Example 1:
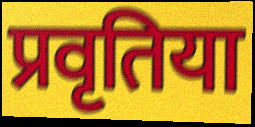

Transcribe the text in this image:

प्रवृतिया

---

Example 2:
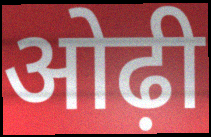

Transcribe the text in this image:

ओढ़ी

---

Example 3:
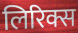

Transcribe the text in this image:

लिरिक्स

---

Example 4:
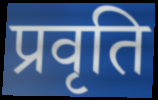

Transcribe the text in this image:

प्रवृति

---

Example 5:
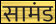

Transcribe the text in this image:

सामंड